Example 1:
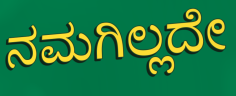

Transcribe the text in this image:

ನಮಗಿಲ್ಲದೇ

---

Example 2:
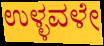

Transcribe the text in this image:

ಉಳ್ಳವಳೇ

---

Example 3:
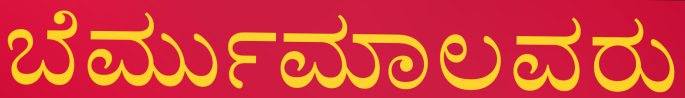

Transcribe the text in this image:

ಬೆರ್ಮುಮಾಲವರು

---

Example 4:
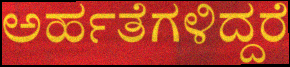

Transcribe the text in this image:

ಅರ್ಹತೆಗಳಿದ್ದರೆ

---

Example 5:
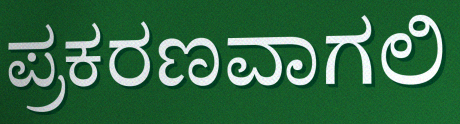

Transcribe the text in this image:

ಪ್ರಕರಣವಾಗಲಿ